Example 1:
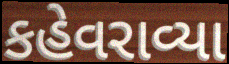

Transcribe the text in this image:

કહેવરાવ્યા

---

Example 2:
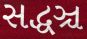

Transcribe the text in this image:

સદ્ધઞ્ચ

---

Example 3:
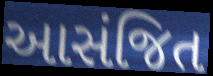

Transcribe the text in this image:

આસંજિત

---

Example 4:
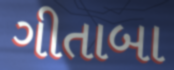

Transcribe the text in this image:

ગીતાબા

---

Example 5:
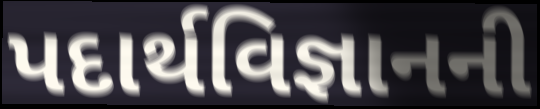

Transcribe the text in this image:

પદાર્થવિજ્ઞાનની